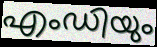
എംഡിയും